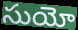
సుయో